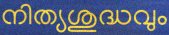
നിത്യശുദ്ധവും